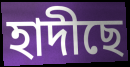
হাদীছে